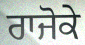
ਰਾਜੋਕੇ